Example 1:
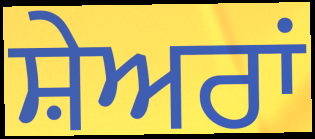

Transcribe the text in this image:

ਸ਼ੇਅਰਾਂ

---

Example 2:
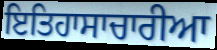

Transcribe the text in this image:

ਇਤਿਹਾਸਾਚਾਰੀਆ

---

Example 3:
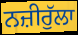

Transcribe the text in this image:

ਨਜ਼ੀਰੁੱਲਾ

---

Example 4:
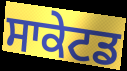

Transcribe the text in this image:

ਸਾਕੇਟਡ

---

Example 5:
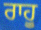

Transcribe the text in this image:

ਰਾਹੂ